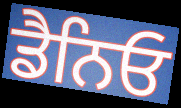
ਡੈਨਿਓ